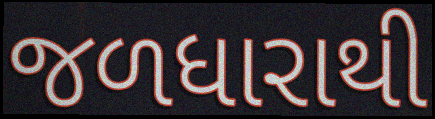
જળધારાથી